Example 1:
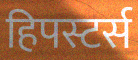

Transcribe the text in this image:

हिपस्टर्स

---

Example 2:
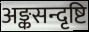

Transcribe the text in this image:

अङ्कसन्दृष्टि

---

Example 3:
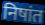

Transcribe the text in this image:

निषांत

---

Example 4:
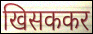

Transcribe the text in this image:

खिसककर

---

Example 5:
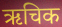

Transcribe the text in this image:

ऋचिक